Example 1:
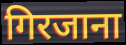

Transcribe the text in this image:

गिरजाना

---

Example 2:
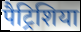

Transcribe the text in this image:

पैट्रिशिया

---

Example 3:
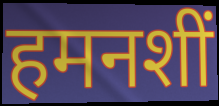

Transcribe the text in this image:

हमनशीं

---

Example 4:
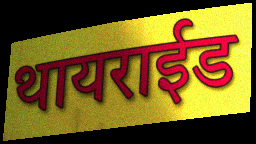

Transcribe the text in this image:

थायराईड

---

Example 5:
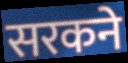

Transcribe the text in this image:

सरकने